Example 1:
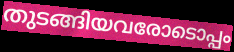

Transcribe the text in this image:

തുടങ്ങിയവരോടൊപ്പം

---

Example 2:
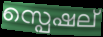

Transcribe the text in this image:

സ്പെഷല്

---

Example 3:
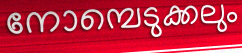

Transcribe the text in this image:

നോമ്പെടുക്കലും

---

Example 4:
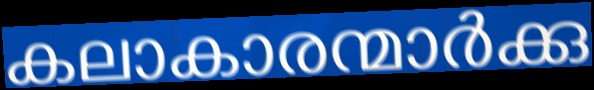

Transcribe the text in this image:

കലാകാരന്മാർക്കു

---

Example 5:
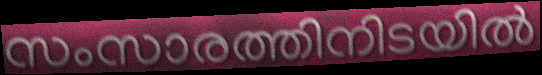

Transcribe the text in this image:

സംസാരത്തിനിടയിൽ